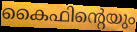
കൈഫിന്റെയും